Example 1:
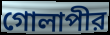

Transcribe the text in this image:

গোলাপীর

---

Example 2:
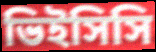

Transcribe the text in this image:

ভিইসিসি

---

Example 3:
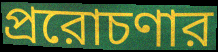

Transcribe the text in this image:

প্ররোচণার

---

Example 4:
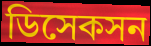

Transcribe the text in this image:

ডিসেকসন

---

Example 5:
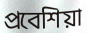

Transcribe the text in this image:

প্রবেশিয়া